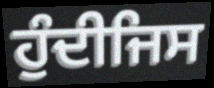
ਹੁੰਦੀਜਿਸ